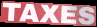
TAXES